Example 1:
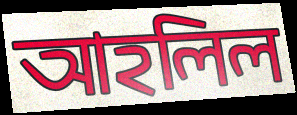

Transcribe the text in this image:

আহলিল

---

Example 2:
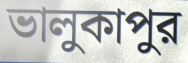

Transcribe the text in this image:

ভালুকাপুর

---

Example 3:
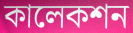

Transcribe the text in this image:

কালেকশন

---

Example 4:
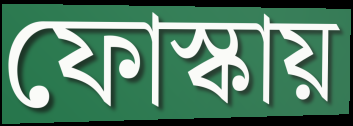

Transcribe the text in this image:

ফোস্কায়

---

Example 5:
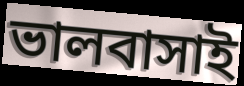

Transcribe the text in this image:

ভালবাসাই